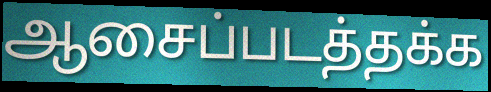
ஆசைப்படத்தக்க